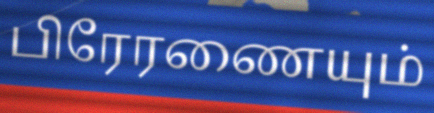
பிரேரணையும்